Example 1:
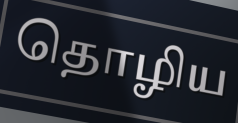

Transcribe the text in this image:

தொழிய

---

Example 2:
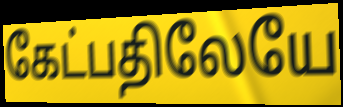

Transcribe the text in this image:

கேட்பதிலேயே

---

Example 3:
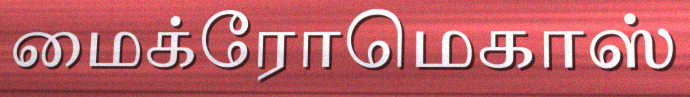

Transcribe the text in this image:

மைக்ரோமெகாஸ்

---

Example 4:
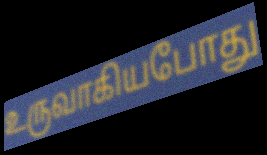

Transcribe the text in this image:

உருவாகியபோது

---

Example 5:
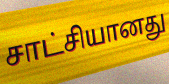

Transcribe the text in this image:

சாட்சியானது